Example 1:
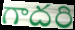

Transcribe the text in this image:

గాదరి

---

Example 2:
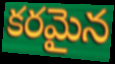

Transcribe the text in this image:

కరమైన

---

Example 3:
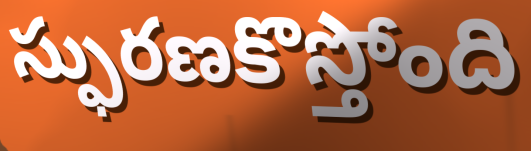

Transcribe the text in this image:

స్ఫురణకొస్తోంది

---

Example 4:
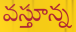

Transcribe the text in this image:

వస్తూన్న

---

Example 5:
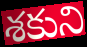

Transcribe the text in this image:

శకుని